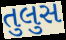
તુલુસ